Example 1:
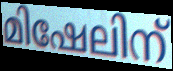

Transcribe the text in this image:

മിഷേലിന്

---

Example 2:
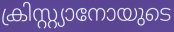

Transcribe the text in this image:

ക്രിസ്റ്റ്യാനോയുടെ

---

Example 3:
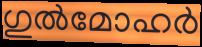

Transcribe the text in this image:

ഗുൽമോഹർ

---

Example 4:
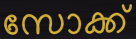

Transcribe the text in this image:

സോക്ക്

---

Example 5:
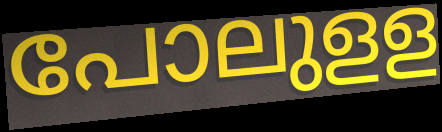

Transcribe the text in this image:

പോലുളള